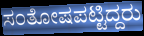
ಸಂತೋಷಪಟ್ಟಿದ್ದರು